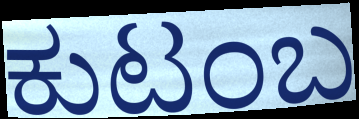
ಕುಟಂಬ